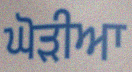
ਘੋੜੀਆ